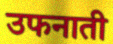
उफनाती